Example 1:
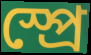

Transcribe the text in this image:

স্প্রে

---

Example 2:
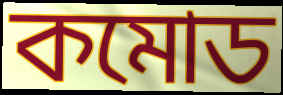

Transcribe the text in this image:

কমোড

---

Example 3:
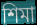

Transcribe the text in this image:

শিমা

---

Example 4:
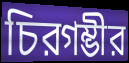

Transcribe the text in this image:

চিরগম্ভীর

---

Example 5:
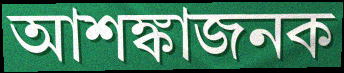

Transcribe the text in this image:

আশঙ্কাজনক